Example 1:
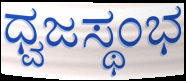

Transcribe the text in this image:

ಧ್ವಜಸ್ಥಂಭ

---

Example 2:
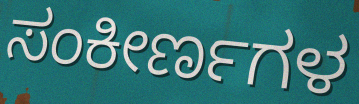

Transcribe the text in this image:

ಸಂಕೀರ್ಣಗಳ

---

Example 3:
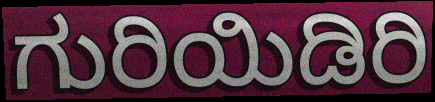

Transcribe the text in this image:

ಗುರಿಯಿಡಿರಿ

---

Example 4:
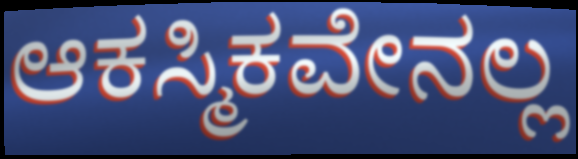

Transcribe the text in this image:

ಆಕಸ್ಮಿಕವೇನಲ್ಲ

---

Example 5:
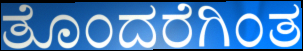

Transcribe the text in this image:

ತೊಂದರೆಗಿಂತ